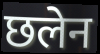
छलेन